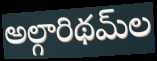
అల్గారిథమ్‌ల